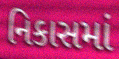
નિકાસમાં